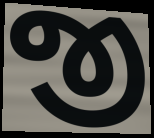
જી